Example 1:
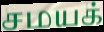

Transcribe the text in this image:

சமயக்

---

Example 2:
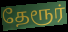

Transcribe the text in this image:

தேரூர்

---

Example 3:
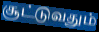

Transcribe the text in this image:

சூட்டுவதும்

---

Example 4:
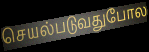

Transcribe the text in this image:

செயல்படுவதுபோல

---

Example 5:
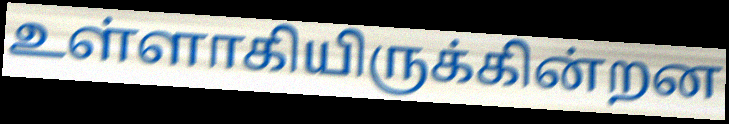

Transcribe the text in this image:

உள்ளாகியிருக்கின்றன